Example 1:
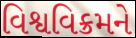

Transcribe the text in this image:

વિશ્વવિક્રમને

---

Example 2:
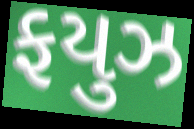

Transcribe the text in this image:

ફયુઝ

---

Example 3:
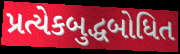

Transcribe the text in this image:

પ્રત્યેકબુદ્ધબોધિત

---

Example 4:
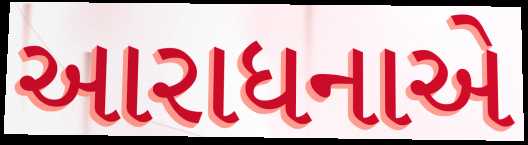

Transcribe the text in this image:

આરાધનાએ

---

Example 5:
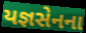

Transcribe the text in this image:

યજ્ઞસેનના